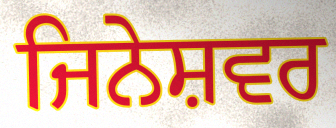
ਜਿਨੇਸ਼ਵਰ